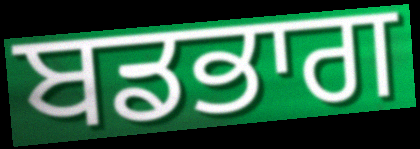
ਬਡਭਾਗ